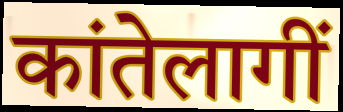
कांतेलागीं